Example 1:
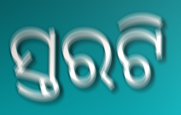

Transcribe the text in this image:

ସ୍ତରଟି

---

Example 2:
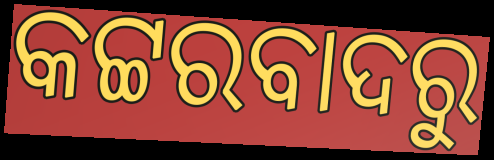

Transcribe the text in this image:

କଟ୍ଟରବାଦରୁ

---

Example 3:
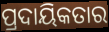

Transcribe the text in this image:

ପ୍ରଦାୟିକତାର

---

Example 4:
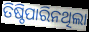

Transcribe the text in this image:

ତିଷ୍ଠିପାରିନଥିଲା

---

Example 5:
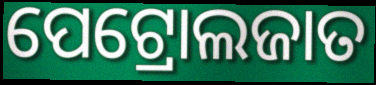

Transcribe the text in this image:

ପେଟ୍ରୋଲଜାତ